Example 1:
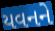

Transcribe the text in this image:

યવનને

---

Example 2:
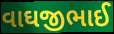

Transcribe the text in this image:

વાઘજીભાઈ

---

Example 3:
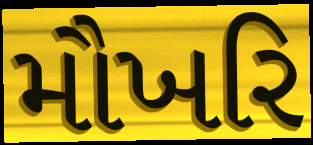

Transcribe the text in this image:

મૌખરિ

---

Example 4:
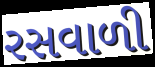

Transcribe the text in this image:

રસવાળી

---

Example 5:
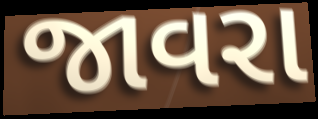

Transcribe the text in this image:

જાવરા